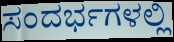
ಸಂದರ್ಭಗಳಲ್ಲಿ